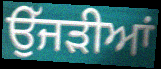
ਉੱਜੜੀਆਂ